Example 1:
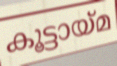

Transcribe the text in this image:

കൂട്ടായ്മ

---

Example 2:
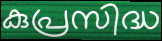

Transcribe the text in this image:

കുപ്രസിദ്ധ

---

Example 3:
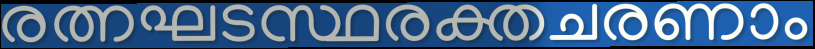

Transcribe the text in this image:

രത്നഘടസ്ഥരക്തചരണാം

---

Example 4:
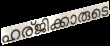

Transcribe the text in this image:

ഹര്ജിക്കാരുടെ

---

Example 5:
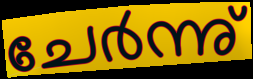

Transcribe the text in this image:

ചേർന്നു്